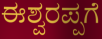
ಈಶ್ವರಪ್ಪಗೆ